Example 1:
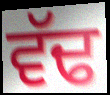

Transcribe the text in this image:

ਵੱਢ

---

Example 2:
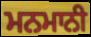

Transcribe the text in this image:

ਮਨਮਾਨੀ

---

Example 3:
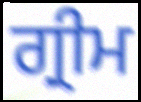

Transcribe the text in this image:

ਗ੍ਰੀਮ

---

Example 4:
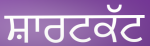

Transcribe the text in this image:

ਸ਼ਾਰਟਕੱਟ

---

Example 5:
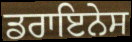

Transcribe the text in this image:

ਡਰਾਇਨੇਸ